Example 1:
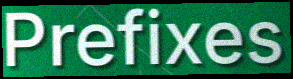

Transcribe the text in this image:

Prefixes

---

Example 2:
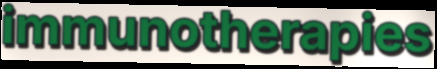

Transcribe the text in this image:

immunotherapies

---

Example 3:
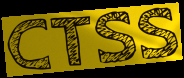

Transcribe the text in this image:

CTSS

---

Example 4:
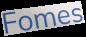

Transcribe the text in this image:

Fomes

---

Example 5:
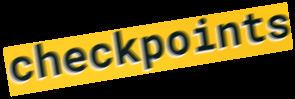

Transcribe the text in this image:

checkpoints